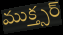
ముక్త్సర్